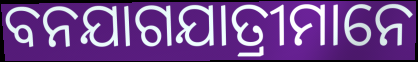
ବନଯାଗଯାତ୍ରୀମାନେ